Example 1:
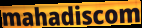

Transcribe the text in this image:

mahadiscom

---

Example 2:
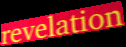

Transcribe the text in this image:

revelation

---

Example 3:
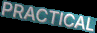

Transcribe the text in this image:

PRACTICAL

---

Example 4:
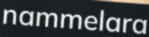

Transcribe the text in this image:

nammelara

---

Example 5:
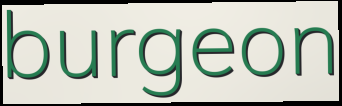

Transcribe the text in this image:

burgeon